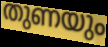
തുണയും